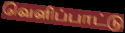
வெளிப்பாட்டு